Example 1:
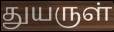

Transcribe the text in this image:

துயருள்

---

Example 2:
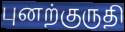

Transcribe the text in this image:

புனற்குருதி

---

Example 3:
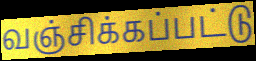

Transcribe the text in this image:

வஞ்சிக்கப்பட்டு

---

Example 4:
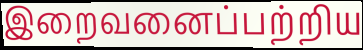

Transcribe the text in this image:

இறைவனைப்பற்றிய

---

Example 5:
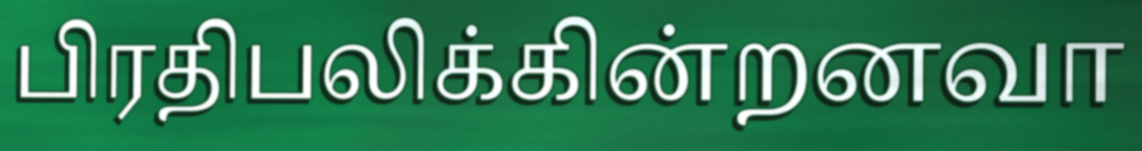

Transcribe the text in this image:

பிரதிபலிக்கின்றனவா